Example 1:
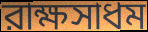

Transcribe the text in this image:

রাক্ষসাধম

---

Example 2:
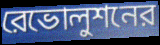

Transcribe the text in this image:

রেভোলুশনের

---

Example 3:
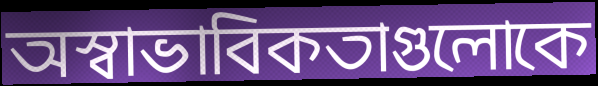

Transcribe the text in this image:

অস্বাভাবিকতাগুলোকে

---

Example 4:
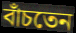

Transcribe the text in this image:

বাঁচতেন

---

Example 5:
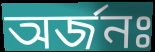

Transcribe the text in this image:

অর্জনঃ